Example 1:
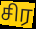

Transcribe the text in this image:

சிர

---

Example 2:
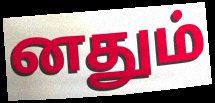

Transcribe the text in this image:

னதும்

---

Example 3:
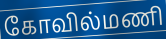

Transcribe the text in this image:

கோவில்மணி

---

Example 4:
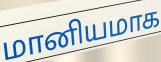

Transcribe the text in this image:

மானியமாக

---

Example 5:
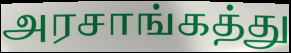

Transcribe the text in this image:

அரசாங்கத்து